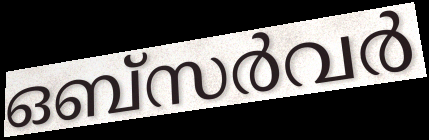
ഒബ്സർവർ